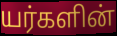
யர்களின்